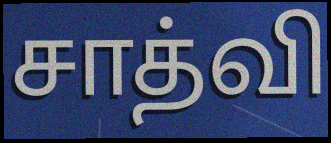
சாத்வி